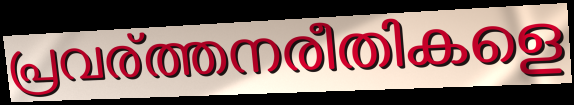
പ്രവര്ത്തനരീതികളെ